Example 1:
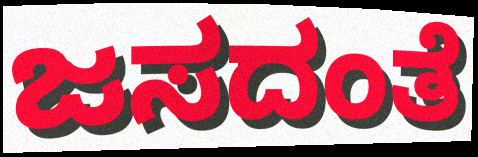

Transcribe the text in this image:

ಜಸದಂತೆ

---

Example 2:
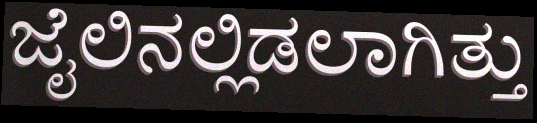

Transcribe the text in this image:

ಜೈಲಿನಲ್ಲಿಡಲಾಗಿತ್ತು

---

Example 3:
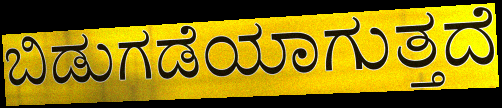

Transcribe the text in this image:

ಬಿಡುಗಡೆಯಾಗುತ್ತದೆ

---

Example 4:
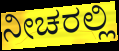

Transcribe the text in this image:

ನೀಚರಲ್ಲಿ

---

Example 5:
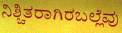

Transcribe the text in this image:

ನಿಶ್ಚಿತರಾಗಿರಬಲ್ಲೆವು